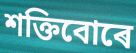
শক্তিবোৰে